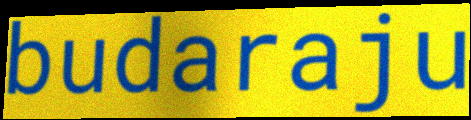
budaraju